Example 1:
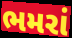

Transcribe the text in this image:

ભમરાં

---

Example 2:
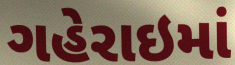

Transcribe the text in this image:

ગહેરાઇમાં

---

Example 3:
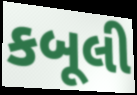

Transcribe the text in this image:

કબૂલી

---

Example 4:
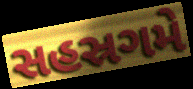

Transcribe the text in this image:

સહસ્રગમે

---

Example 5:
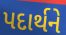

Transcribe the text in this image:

પદાર્થને